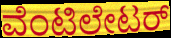
ವೆಂಟಿಲೇಟರ್